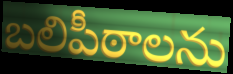
బలిపీఠాలను